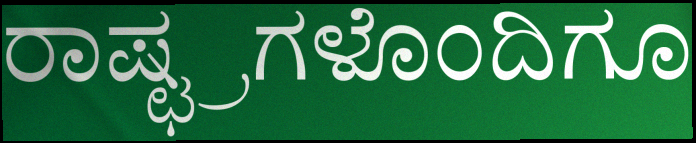
ರಾಷ್ಟ್ರಗಳೊಂದಿಗೂ